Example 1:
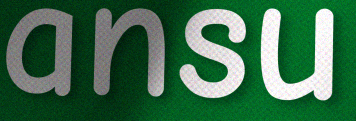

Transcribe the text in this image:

ansu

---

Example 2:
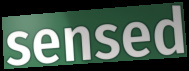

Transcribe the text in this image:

sensed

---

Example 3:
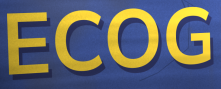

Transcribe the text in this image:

ECOG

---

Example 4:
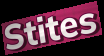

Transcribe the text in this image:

Stites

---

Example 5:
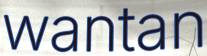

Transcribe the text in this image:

wantan